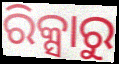
ରିକ୍ସାରୁ